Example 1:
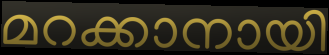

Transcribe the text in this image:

മറക്കാനായി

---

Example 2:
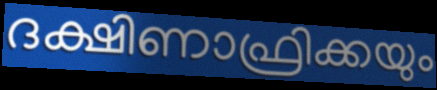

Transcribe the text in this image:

ദക്ഷിണാഫ്രിക്കയും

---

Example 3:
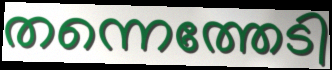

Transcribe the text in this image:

തന്നെത്തേടി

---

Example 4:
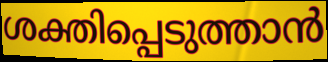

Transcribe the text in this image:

ശക്തിപ്പെടുത്താൻ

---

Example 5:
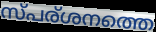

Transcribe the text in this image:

സ്പര്ശനത്തെ